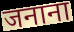
जनाना